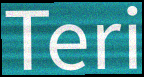
Teri